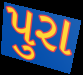
પુરા